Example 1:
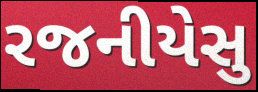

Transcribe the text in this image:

રજનીયેસુ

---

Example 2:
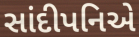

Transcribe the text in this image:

સાંદીપનિએ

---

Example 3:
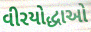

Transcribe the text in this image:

વીરયોદ્ધાઓ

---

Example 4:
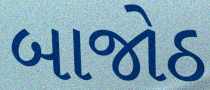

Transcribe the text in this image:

બાજોઠ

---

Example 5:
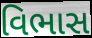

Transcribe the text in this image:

વિભાસ